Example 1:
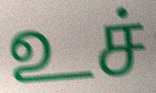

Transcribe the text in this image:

உச்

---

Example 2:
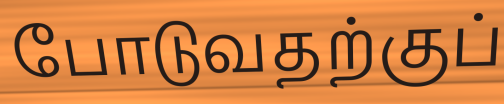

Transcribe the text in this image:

போடுவதற்குப்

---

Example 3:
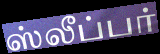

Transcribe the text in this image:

ஸ்லீப்பர்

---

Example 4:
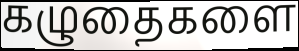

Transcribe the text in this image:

கழுதைகளை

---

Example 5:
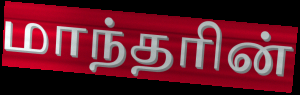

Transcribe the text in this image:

மாந்தரின்